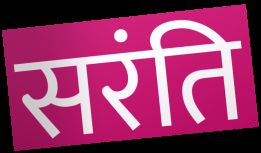
सरंति